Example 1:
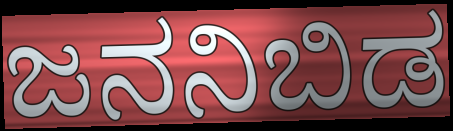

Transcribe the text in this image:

ಜನನಿಬಿಡ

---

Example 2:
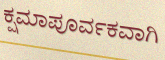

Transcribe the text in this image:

ಕ್ಷಮಾಪೂರ್ವಕವಾಗಿ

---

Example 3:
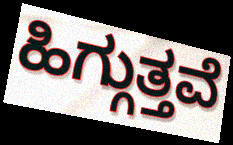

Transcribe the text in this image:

ಹಿಗ್ಗುತ್ತವೆ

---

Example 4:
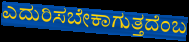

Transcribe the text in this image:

ಎದುರಿಸಬೇಕಾಗುತ್ತದೆಂಬ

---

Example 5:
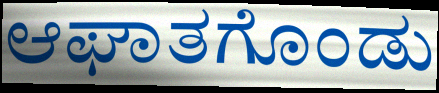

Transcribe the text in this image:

ಆಘಾತಗೊಂಡು